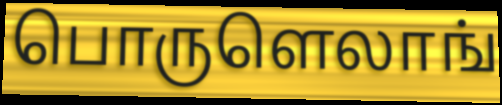
பொருளெலாங்